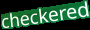
checkered